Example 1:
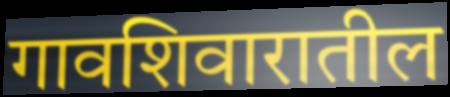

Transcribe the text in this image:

गावशिवारातील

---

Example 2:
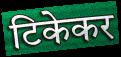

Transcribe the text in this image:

टिकेकर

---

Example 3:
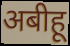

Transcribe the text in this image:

अबीहू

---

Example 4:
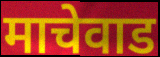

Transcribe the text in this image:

माचेवाड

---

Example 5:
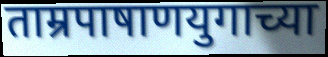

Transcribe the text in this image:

ताम्रपाषाणयुगाच्या